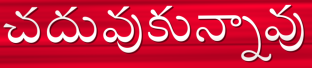
చదువుకున్నావు